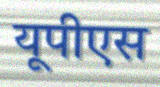
यूपीएस